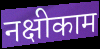
नक्षीकाम